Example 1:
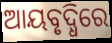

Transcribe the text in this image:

ଆୟବୃଦ୍ଧିରେ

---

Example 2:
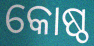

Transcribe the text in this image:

କୋଷ୍ଠ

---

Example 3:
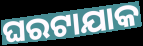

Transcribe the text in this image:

ଘରଟାଯାକ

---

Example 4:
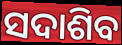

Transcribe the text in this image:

ସଦାଶିବ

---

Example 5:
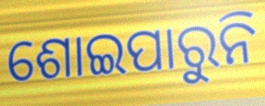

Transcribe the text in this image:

ଶୋଇପାରୁନି